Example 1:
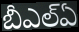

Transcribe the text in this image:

బీఎల్ఏ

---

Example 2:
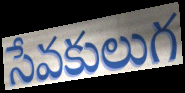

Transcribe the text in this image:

సేవకులుగ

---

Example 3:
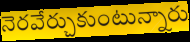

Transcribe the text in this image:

నెరవేర్చుకుంటున్నారు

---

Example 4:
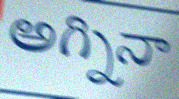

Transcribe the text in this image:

అగ్నినా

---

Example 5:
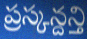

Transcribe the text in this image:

ప్రస్కన్దన్తి